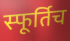
स्फूर्तिच